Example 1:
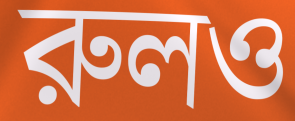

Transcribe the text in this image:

রুলও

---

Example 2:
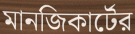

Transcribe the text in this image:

মানজিকার্টের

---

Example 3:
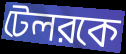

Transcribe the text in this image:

টেলরকে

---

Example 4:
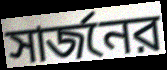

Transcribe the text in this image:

সার্জনের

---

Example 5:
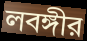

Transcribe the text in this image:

লবঙ্গীর